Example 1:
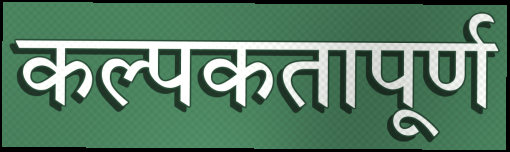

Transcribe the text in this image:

कल्पकतापूर्ण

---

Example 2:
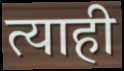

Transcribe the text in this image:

त्याही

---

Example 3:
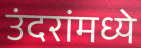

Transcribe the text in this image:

उंदरांमध्ये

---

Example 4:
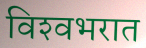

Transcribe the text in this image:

विश्वभरात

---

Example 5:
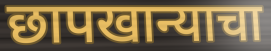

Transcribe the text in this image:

छापखान्याचा